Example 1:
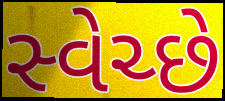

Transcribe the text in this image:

સ્વેચ્છે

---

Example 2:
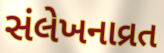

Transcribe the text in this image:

સંલેખનાવ્રત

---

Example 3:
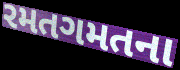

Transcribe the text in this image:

રમતગમતના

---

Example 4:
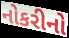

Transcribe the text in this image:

નોકરીનો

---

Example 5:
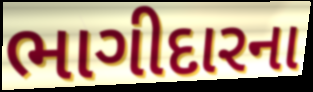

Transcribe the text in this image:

ભાગીદારના